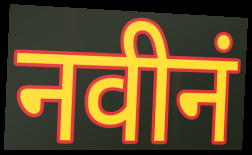
नवीनं